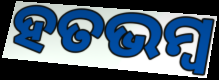
ହତଭମ୍ୱ